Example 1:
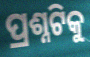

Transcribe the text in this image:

ପ୍ରଶ୍ନଟିକୁ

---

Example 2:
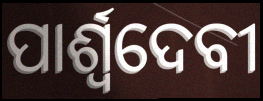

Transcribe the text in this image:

ପାର୍ଶ୍ୱଦେବୀ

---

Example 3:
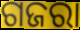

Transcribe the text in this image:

ଗଜରା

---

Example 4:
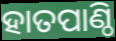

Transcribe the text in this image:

ହାତପାଣ୍ଠି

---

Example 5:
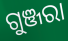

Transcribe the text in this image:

ଗୁଞ୍ଜରା